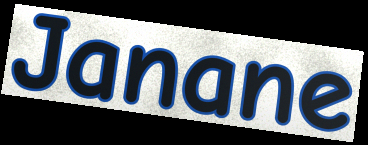
Janane